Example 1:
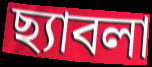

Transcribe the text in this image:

ছ্যাবলা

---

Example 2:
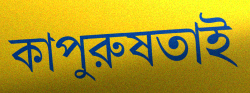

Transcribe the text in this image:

কাপুরুষতাই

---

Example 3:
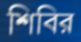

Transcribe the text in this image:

শিবির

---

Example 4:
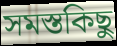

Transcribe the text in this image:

সমস্তকিছু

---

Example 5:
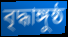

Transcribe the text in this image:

বৃদ্ধাঙ্গুষ্ঠ